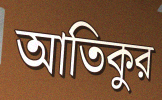
আতিকুর